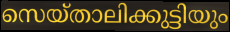
സെയ്താലിക്കുട്ടിയും